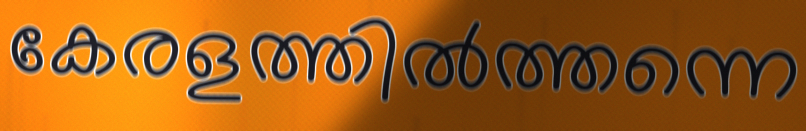
കേരളത്തിൽത്തന്നെ